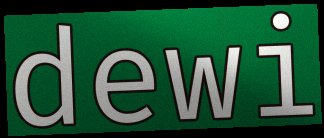
dewi